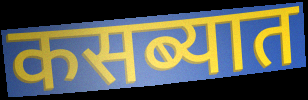
कसब्यात